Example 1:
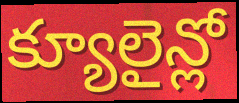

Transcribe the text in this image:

క్యూలైన్లో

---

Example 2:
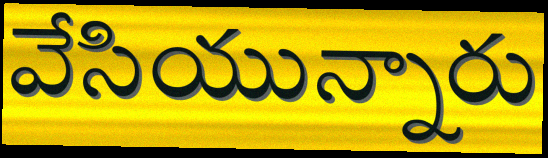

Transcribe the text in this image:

వేసియున్నారు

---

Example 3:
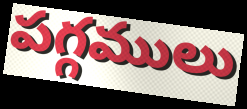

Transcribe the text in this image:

పగ్గములు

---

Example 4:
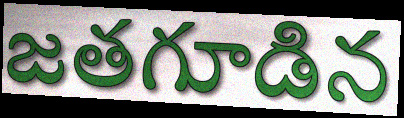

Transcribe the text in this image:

జతగూడిన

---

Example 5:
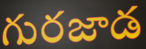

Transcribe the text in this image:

గురజాడ